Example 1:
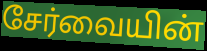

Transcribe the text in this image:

சேர்வையின்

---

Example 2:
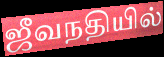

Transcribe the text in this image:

ஜீவநதியில்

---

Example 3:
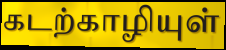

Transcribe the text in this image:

கடற்காழியுள்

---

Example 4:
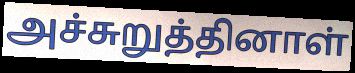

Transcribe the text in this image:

அச்சுறுத்தினாள்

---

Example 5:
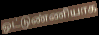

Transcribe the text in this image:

ஒட்டுண்ணியாக